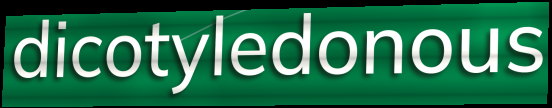
dicotyledonous